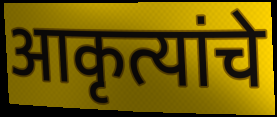
आकृत्यांचे